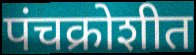
पंचक्रोशीत